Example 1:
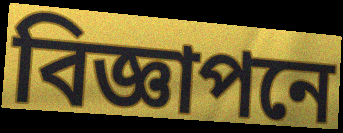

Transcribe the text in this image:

বিজ্ঞাপনে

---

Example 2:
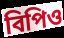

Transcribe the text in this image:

বিপিও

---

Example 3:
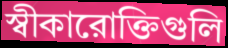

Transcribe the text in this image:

স্বীকারোক্তিগুলি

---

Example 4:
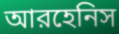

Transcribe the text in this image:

আরহেনিস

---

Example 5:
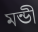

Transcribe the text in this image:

মন্ডী